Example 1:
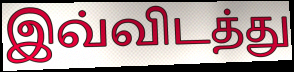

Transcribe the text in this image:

இவ்விடத்து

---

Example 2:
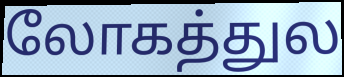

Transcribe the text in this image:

லோகத்துல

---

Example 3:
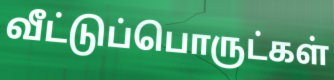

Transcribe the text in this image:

வீட்டுப்பொருட்கள்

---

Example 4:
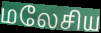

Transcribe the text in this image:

மலேசிய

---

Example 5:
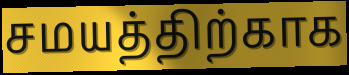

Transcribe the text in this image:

சமயத்திற்காக